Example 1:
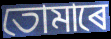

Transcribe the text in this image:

তোমাৰে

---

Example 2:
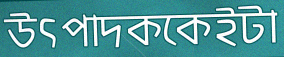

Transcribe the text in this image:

উৎপাদককেইটা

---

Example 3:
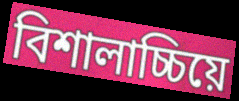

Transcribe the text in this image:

বিশালাচ্চিয়ে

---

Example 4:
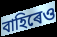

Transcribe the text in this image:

বাহিৰেও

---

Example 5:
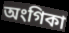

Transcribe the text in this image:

অংগিকা